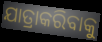
ଯାତ୍ରାକରିବାକୁ